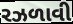
રઝળાવી